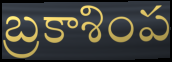
బ్రకాశింప